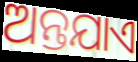
ଅନ୍ତଯାଏ